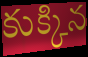
కుక్కిన